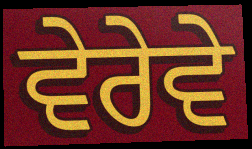
ਵੇਰੇਵੇ